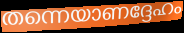
തന്നെയാണദ്ദേഹം